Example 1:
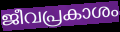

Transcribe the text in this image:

ജീവപ്രകാശം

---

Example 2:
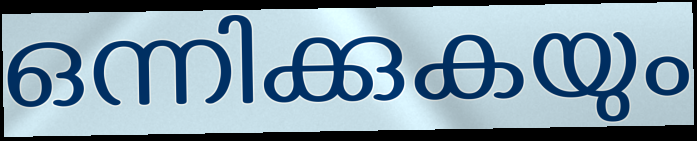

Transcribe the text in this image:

ഒന്നിക്കുകയും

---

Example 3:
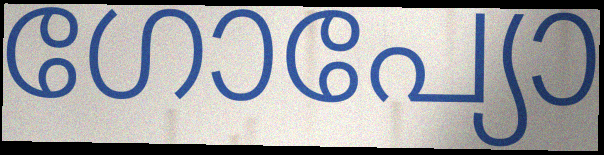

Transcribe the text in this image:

ഗോപ്യോ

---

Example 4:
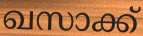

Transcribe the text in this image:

ഖസാക്ക്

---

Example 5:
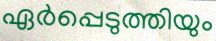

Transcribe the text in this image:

ഏർപ്പെടുത്തിയും